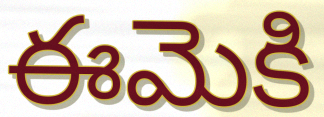
ఈమెకి